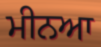
ਮੀਨਆ